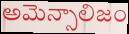
అమెన్సాలిజం